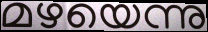
മഴയെന്നു